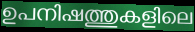
ഉപനിഷത്തുകളിലെ